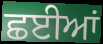
ਛਈਆਂ